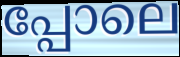
പ്പോലെ